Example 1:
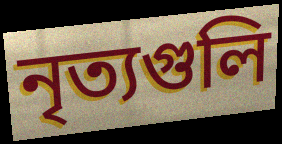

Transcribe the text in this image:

নৃত্যগুলি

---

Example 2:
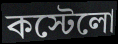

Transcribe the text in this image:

কস্টেলো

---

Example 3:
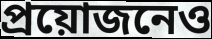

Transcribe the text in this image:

প্রয়োজনেও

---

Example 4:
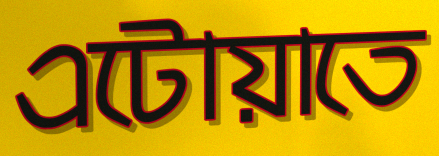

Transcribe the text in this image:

এটোয়াতে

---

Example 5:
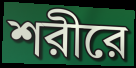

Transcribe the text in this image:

শরীরে